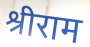
श्रीराम